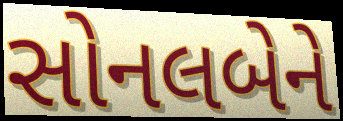
સોનલબેને